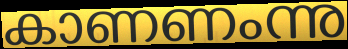
കാണണംന്നു